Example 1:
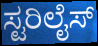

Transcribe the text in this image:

ಸ್ಟರಿಲೈಸ್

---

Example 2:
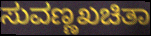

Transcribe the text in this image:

ಸುವಣ್ಣಖಚಿತಾ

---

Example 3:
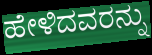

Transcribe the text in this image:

ಹೇಳಿದವರನ್ನು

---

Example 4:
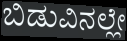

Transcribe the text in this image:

ಬಿಡುವಿನಲ್ಲೇ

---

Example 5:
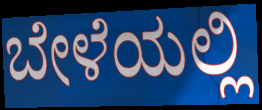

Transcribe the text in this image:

ಬೇಳೆಯಲ್ಲಿ